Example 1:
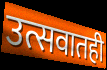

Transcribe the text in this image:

उत्सवातही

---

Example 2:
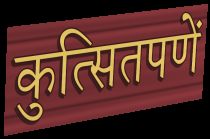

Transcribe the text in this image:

कुत्सितपणें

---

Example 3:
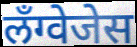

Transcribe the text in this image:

लँग्वेजेस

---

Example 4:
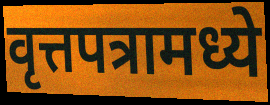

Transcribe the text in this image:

वृत्तपत्रामध्ये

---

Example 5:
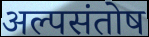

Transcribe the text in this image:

अल्पसंतोष